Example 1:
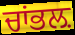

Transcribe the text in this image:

ਚਾਂਭਲ਼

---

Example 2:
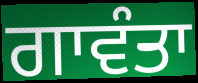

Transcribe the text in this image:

ਗਾਵੰਤਾ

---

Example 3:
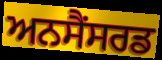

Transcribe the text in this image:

ਅਨਸੈਂਸਰਡ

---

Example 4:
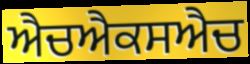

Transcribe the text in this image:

ਐਚਐਕਸਐਚ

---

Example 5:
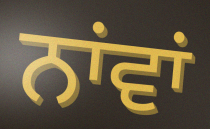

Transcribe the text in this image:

ਨਾਂਵਾਂ